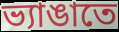
ভ্যাঙাতে